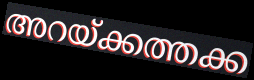
അറയ്ക്കത്തക്ക